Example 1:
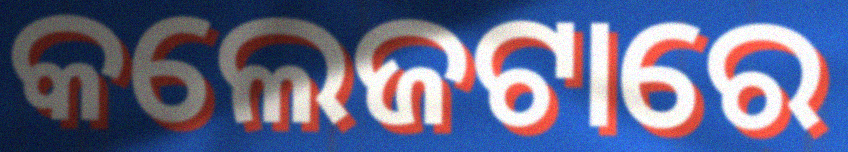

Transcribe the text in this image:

କଲେଜଟାରେ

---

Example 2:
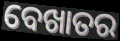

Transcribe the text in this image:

ବେଖାତର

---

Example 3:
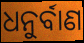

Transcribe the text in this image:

ଧନୁର୍ବାଣ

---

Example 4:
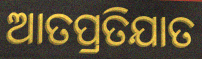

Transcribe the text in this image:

ଆତପ୍ରତିଯାତ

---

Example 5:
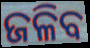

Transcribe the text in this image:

ଜଳିବ